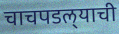
चाचपडल्याची